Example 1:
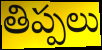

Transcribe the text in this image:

తిప్పలు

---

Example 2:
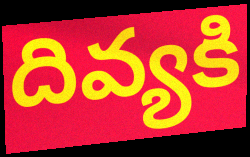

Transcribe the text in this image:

దివ్యకి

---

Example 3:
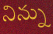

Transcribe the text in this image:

నిన్ను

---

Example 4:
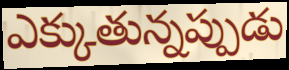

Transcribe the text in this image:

ఎక్కుతున్నప్పుడు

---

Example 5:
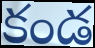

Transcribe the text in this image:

కండ